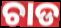
ଚାଡ